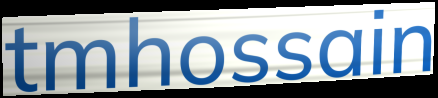
tmhossain